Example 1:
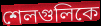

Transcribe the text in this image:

শেলগুলিকে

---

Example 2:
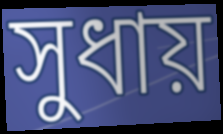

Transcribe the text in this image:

সুধায়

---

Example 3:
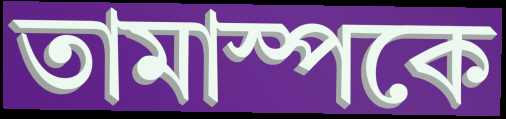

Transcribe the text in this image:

তামাস্পকে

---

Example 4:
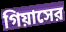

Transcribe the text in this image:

গিয়াসের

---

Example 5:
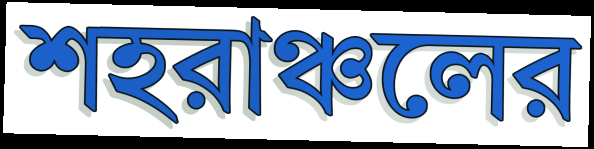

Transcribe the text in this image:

শহরাঞ্চলের